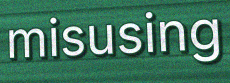
misusing